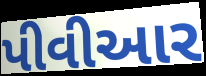
પીવીઆર